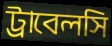
ট্রাবেলসি